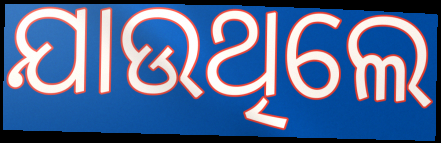
ଯାଉଥିଲେ